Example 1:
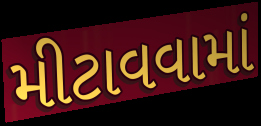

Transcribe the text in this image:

મીટાવવામાં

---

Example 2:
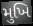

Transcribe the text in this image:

મુખિ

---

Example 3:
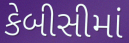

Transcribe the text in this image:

કેબીસીમાં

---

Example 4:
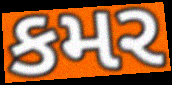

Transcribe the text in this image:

કમર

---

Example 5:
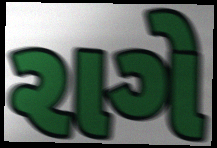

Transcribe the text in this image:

રાગે